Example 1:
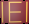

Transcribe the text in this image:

IEI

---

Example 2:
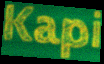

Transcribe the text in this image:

Kapi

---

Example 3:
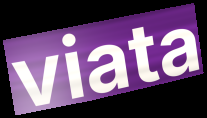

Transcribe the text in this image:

viata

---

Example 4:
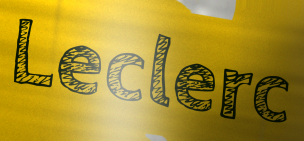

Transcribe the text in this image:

Leclerc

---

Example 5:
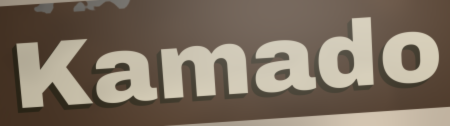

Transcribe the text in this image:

Kamado